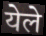
येले